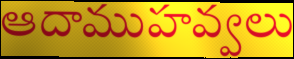
ఆదాముహవ్వలు